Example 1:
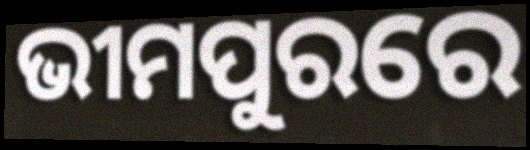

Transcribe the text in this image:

ଭୀମପୁରରେ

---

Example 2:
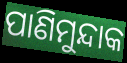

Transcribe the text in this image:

ପାଣିମୁନ୍ଦାକ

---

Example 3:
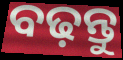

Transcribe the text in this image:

ବଢ଼ନ୍ତୁ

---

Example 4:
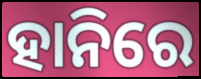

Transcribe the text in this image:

ହାନିରେ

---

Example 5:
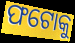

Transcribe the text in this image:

ଫଟୋକୁ